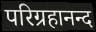
परिग्रहानन्द